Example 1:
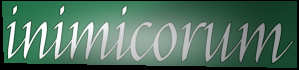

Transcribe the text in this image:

inimicorum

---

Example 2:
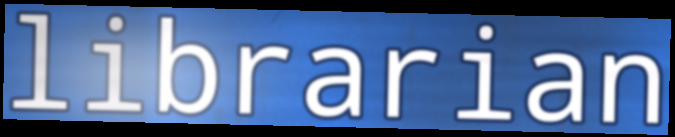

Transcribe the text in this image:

librarian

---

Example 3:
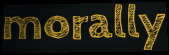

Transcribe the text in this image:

morally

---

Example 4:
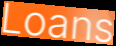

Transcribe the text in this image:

Loans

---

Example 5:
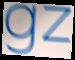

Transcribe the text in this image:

gz